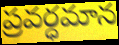
ప్రవర్ధమాన